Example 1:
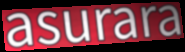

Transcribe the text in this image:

asurara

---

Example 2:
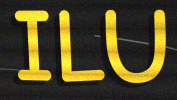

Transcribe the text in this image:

ILU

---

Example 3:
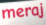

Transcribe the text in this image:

meraj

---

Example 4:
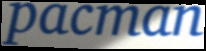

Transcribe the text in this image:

pacman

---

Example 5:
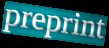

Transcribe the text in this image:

preprint